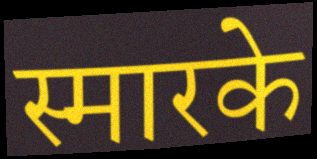
स्मारके